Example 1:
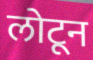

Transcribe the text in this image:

लोटून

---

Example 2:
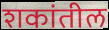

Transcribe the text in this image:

शकांतील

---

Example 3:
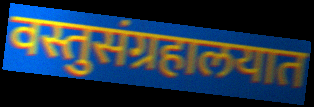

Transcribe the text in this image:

वस्तुसंग्रहालयात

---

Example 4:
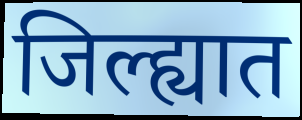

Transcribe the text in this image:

जिल्ह्यात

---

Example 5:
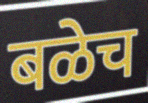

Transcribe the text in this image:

बळेच